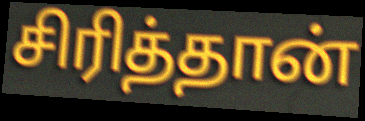
சிரித்தான்